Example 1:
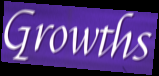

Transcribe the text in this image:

Growths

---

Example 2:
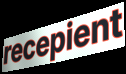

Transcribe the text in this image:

recepient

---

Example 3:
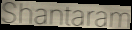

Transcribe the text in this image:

Shantaram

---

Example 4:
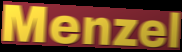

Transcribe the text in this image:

Menzel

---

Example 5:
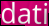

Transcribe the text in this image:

dati